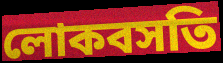
লোকবসতি